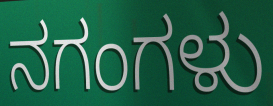
ನಗಂಗಳು